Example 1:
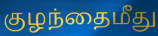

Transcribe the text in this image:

குழந்தைமீது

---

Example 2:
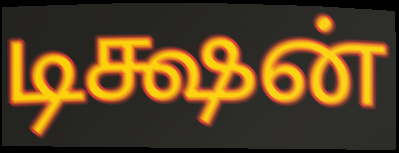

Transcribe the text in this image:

டிக்ஷன்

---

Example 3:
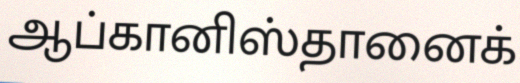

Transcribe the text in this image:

ஆப்கானிஸ்தானைக்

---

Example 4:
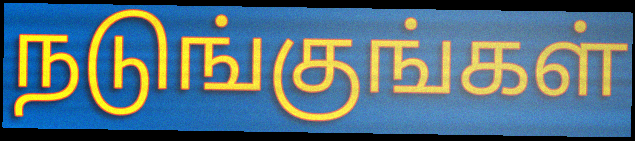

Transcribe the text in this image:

நடுங்குங்கள்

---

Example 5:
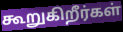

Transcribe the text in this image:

கூறுகிறீர்கள்